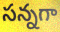
సన్నగా